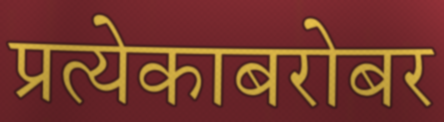
प्रत्येकाबरोबर